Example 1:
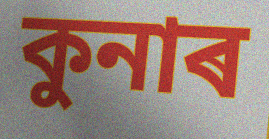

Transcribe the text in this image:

কুনাৰ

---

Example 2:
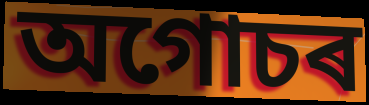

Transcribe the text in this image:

অগোচৰ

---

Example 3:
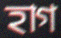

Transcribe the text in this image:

হাগ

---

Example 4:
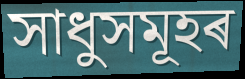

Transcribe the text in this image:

সাধুসমূহৰ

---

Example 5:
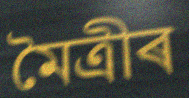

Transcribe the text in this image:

মৈত্ৰীৰ